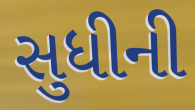
સુધીની